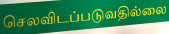
செலவிடப்படுவதில்லை